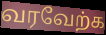
வரவேற்க